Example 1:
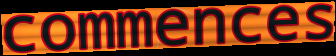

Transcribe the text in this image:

commences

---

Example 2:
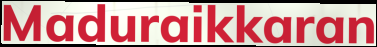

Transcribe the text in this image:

Maduraikkaran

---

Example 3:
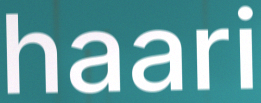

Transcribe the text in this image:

haari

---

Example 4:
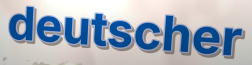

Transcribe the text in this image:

deutscher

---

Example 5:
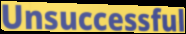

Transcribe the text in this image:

Unsuccessful